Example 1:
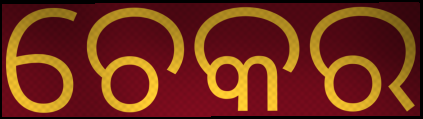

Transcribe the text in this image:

ଚେକର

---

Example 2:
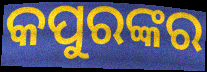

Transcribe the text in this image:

କପୁରଙ୍କର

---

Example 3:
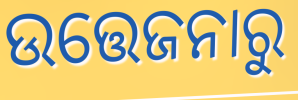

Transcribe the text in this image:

ଉତ୍ତେଜନାରୁ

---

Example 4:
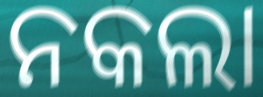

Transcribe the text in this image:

ନକଲା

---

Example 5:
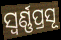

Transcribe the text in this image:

ସ୍ୱର୍ଣ୍ଣପ୍ରସୂ